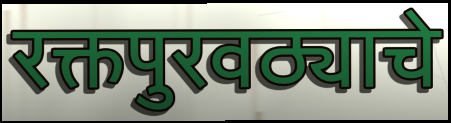
रक्तपुरवठ्याचे